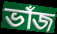
ভাঁজ